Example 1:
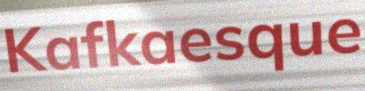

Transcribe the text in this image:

Kafkaesque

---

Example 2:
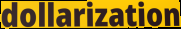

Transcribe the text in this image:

dollarization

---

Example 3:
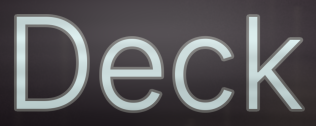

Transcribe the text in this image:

Deck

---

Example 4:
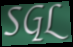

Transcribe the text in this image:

SGL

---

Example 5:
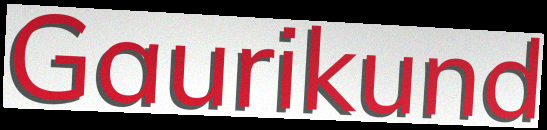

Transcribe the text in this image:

Gaurikund